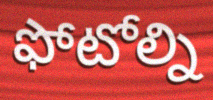
ఫోటోల్ని